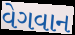
વેગવાન